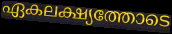
ഏകലക്ഷ്യത്തോടെ